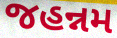
જહન્નમ